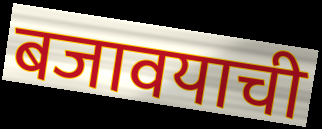
बजावयाची